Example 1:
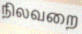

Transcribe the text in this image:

நிலவறை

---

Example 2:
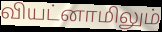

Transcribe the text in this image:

வியட்னாமிலும்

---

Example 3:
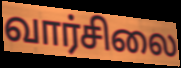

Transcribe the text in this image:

வார்சிலை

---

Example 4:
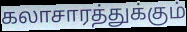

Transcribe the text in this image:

கலாசாரத்துக்கும்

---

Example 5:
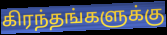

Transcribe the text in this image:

கிரந்தங்களுக்கு